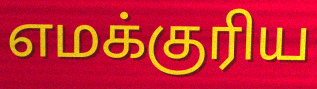
எமக்குரிய